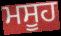
ਮਸੂਹ